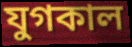
যুগকাল